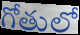
గోతులో